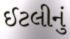
ઈટલીનું